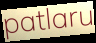
patlaru